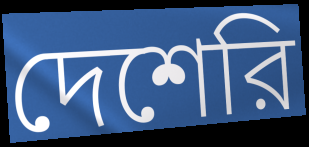
দেশেরি